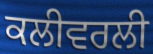
ਕਲੀਵਰਲੀ